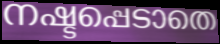
നഷ്ടപ്പെടാതെ